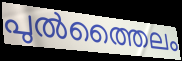
പുൽത്തൈലം